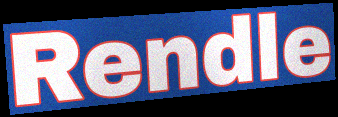
Rendle